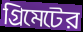
গ্রিমেটের